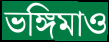
ভঙ্গিমাও